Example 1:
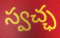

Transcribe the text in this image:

స్వచ్ఛ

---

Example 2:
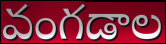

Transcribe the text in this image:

వంగడాల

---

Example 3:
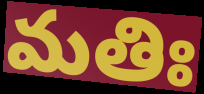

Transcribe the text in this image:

మతిః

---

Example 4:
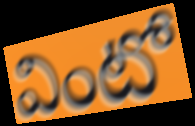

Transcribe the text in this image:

వింటో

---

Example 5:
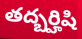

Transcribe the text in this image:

తద్బర్హిషి